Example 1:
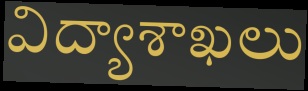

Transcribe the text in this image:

విద్యాశాఖలు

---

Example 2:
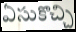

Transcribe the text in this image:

ఏసుకొచ్చి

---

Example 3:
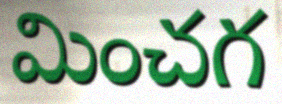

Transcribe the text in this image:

మించగ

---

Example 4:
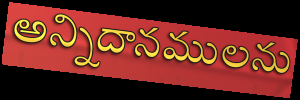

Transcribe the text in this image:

అన్నిదానములను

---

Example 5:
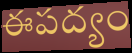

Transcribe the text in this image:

ఈపద్యం